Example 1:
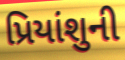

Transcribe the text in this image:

પ્રિયાંશુની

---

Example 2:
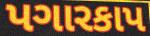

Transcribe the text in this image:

પગારકાપ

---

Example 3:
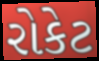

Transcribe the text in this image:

રોકેટ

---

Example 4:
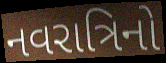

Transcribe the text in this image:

નવરાત્રિનો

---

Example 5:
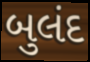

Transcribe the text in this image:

બુલંદ